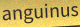
anguinus